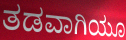
ತಡವಾಗಿಯೂ